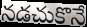
నడచుకొనే